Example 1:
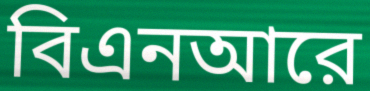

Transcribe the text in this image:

বিএনআরে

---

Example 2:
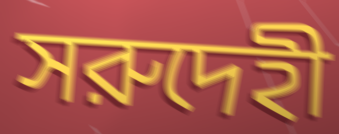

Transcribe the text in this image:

সরুদেহী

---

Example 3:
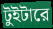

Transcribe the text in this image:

টুইটারে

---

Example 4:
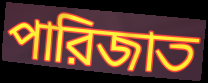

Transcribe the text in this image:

পারিজাত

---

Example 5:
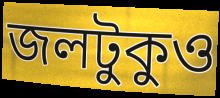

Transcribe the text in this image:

জলটুকুও